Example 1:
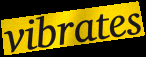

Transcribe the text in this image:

vibrates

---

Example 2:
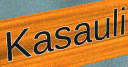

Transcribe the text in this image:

Kasauli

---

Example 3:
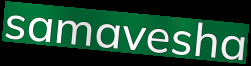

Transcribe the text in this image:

samavesha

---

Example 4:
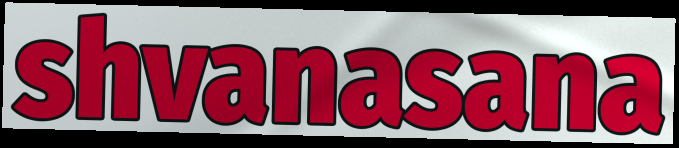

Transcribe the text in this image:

shvanasana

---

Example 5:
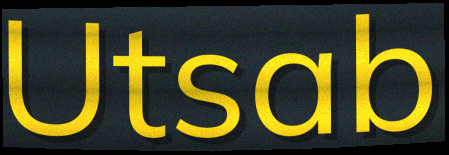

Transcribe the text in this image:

Utsab